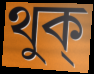
থুক্